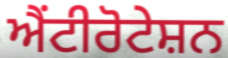
ਐਂਟੀਰੋਟੇਸ਼ਨ